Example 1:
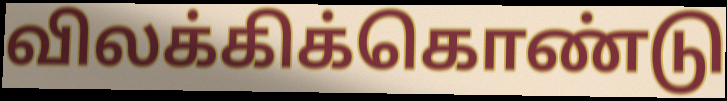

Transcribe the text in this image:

விலக்கிக்கொண்டு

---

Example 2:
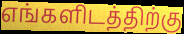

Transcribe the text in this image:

எங்களிடத்திற்கு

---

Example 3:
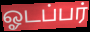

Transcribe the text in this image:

ஓடப்பர்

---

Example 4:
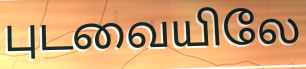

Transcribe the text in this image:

புடவையிலே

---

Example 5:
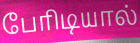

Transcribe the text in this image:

பேரிடியால்